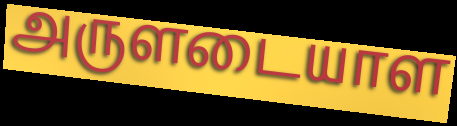
அருளடையாள